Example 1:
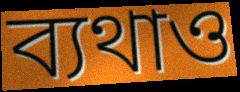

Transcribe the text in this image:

ব্যথাও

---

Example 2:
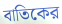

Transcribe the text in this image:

বাতিকের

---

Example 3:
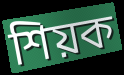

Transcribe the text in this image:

শিয়ক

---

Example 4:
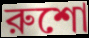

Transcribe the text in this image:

রুশো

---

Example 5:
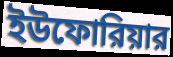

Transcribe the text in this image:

ইউফোরিয়ার